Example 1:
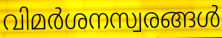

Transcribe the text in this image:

വിമർശനസ്വരങ്ങൾ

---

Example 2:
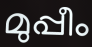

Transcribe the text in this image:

മുപ്പീം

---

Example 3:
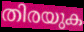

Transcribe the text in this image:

തിരയുക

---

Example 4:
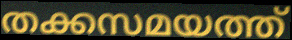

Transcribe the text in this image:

തക്കസമയത്ത്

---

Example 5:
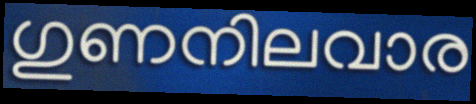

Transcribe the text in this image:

ഗുണനിലവാര